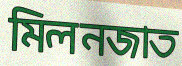
মিলনজাত